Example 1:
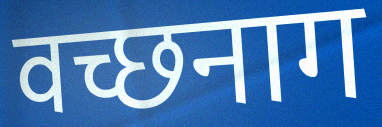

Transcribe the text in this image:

वच्छनाग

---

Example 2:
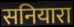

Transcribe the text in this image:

सनियारा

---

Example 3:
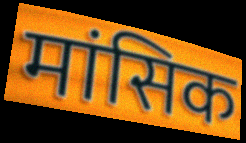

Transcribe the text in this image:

मांसिक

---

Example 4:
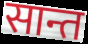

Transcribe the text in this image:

सान्त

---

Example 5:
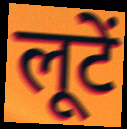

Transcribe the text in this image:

लूटें